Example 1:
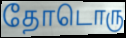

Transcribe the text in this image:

தோடொரு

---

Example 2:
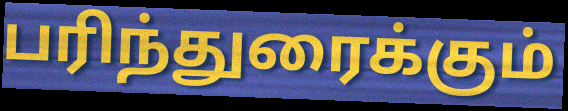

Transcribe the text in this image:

பரிந்துரைக்கும்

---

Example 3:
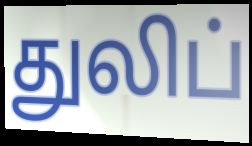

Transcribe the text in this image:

துலிப்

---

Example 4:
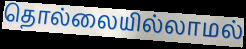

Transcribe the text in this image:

தொல்லையில்லாமல்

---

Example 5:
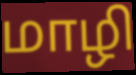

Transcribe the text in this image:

மாழி